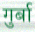
गुर्बा